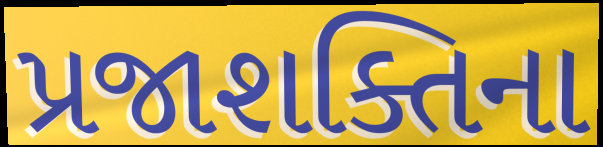
પ્રજાશક્તિના